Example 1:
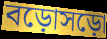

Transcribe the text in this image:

বড়োসড়ো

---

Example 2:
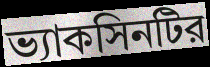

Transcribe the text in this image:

ভ্যাকসিনটির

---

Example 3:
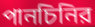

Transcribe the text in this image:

পানচিনির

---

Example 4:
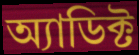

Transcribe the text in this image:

অ্যাডিক্ট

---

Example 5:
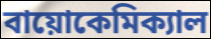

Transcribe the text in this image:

বায়োকেমিক্যাল